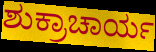
ಶುಕ್ರಾಚಾರ್ಯ